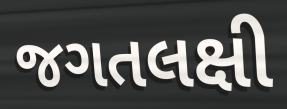
જગતલક્ષી